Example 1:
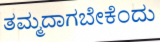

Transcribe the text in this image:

ತಮ್ಮದಾಗಬೇಕೆಂದು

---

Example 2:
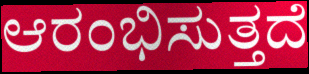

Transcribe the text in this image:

ಆರಂಭಿಸುತ್ತದೆ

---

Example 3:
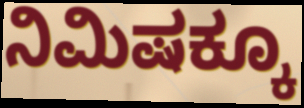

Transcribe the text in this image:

ನಿಮಿಷಕ್ಕೂ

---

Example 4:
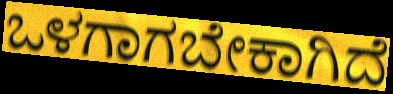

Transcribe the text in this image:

ಒಳಗಾಗಬೇಕಾಗಿದೆ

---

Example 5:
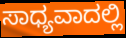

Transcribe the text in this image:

ಸಾಧ್ಯವಾದಲ್ಲಿ